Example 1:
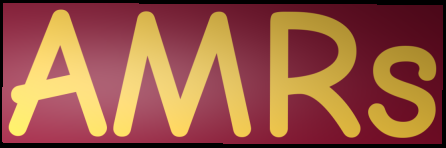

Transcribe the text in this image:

AMRs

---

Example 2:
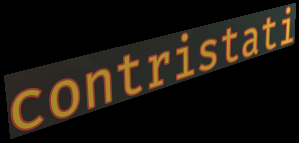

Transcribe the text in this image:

contristati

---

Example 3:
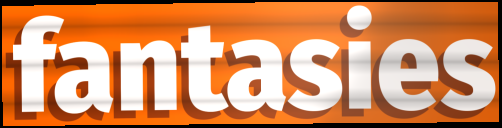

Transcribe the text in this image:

fantasies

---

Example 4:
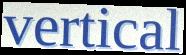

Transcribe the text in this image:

vertical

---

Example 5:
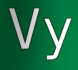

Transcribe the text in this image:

Vy